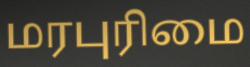
மரபுரிமை